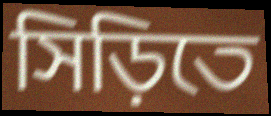
সিড়িতে